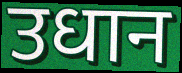
उधान